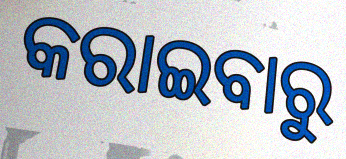
କରାଇବାରୁ